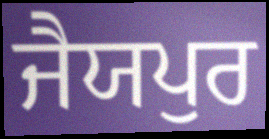
ਜੈਯਪੁਰ